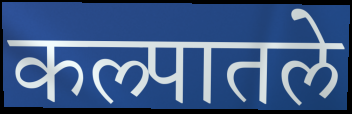
कल्पातले